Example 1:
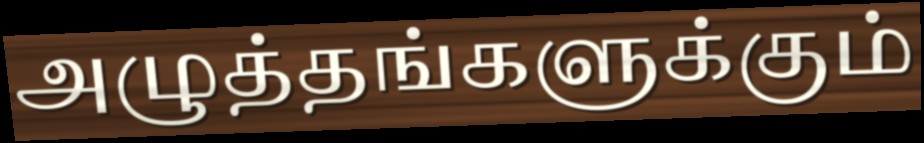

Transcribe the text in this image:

அழுத்தங்களுக்கும்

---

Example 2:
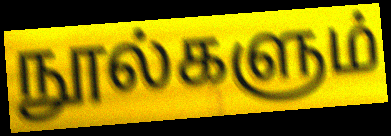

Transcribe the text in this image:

நூல்களும்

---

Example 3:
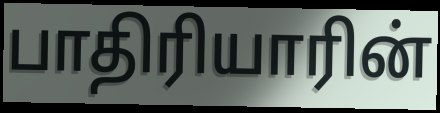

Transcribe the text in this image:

பாதிரியாரின்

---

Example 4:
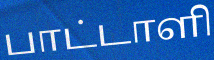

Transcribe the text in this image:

பாட்டாளி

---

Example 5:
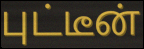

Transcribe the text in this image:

புட்டீன்